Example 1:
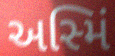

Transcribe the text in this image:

અસ્મિં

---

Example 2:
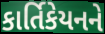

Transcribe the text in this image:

કાર્તિકેયનને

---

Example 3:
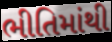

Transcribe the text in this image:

ભીતિમાંથી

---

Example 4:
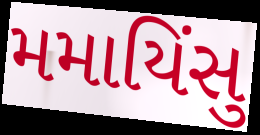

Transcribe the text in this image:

મમાયિંસુ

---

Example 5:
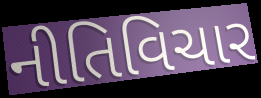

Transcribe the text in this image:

નીતિવિચાર